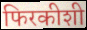
फिरकीशी